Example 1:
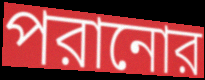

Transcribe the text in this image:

পরানোর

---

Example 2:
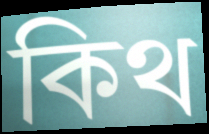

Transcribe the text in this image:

কিথ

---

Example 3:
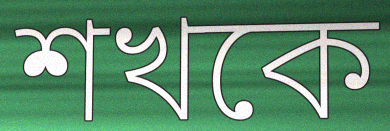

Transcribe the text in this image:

শখকে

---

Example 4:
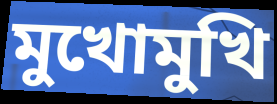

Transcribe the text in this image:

মুখোমুখি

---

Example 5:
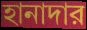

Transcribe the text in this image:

হানাদার